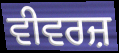
ਵੀਵਰਜ਼